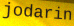
jodarin